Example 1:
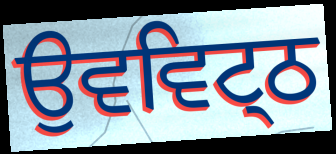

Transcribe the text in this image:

ਉਵਵਿਟ੍ਠ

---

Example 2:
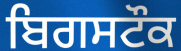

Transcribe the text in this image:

ਬਿਗਸਟੌਕ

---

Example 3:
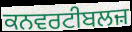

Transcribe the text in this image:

ਕਨਵਰਟੀਬਲਜ਼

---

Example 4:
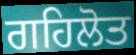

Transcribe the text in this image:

ਗਹਿਲੋਤ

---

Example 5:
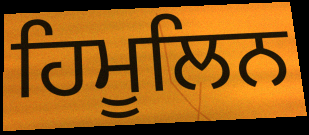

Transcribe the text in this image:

ਹਿਮੂਲਿਨ